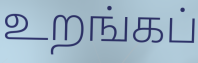
உறங்கப்